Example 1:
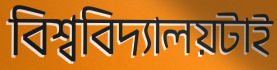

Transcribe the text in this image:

বিশ্ববিদ্যালয়টাই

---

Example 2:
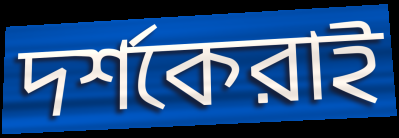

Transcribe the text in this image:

দর্শকেরাই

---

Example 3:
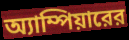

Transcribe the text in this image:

অ্যাম্পিয়ারের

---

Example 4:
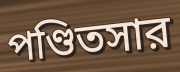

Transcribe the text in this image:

পণ্ডিতসার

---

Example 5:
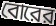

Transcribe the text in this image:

বোরের